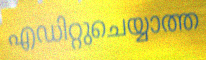
എഡിറ്റുചെയ്യാത്ത